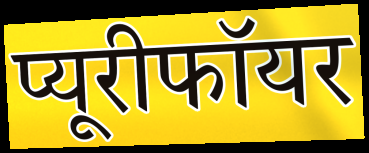
प्यूरीफॉयर